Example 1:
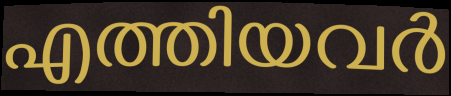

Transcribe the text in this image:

എത്തിയവർ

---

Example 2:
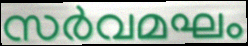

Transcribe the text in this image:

സർവമഘം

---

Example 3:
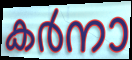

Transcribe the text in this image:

കർനാ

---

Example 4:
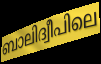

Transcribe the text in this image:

ബാലിദ്വീപിലെ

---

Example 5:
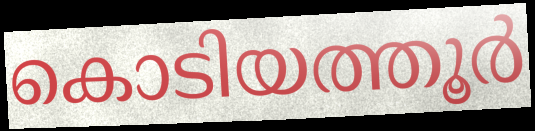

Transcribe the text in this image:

കൊടിയത്തൂർ